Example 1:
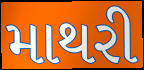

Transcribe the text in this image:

માથરી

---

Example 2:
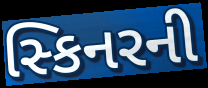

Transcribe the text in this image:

સ્કિનરની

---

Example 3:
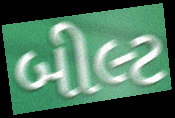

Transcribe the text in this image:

બીલ્ટ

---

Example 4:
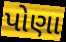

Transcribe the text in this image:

પોણા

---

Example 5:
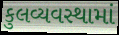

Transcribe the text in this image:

કુલવ્યવસ્થામાં